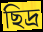
ছিদ্র